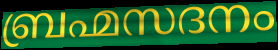
ബ്രഹ്മസദനം